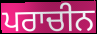
ਪਰਾਚੀਨ